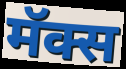
मॅक्स